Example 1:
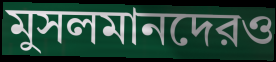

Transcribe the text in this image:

মুসলমানদেরও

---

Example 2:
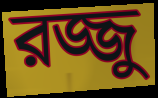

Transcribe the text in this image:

রজ্জু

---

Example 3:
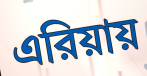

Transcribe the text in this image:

এরিয়ায়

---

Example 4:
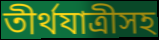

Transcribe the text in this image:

তীর্থযাত্রীসহ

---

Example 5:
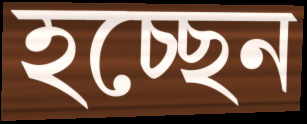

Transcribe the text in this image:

হচ্ছেন